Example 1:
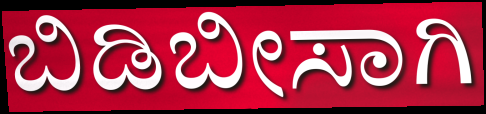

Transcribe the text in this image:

ಬಿಡಿಬೀಸಾಗಿ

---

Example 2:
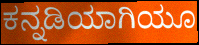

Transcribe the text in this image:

ಕನ್ನಡಿಯಾಗಿಯೂ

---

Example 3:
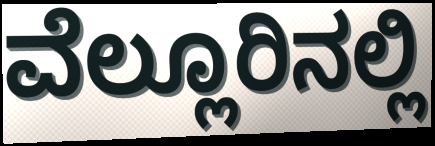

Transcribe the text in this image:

ವೆಲ್ಲೂರಿನಲ್ಲಿ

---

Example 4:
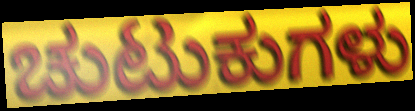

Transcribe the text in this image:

ಚುಟುಕುಗಳು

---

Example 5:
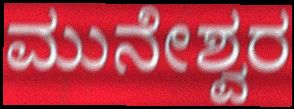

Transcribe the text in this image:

ಮುನೇಶ್ವರ